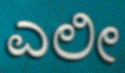
ಎಲೀ